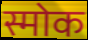
स्मोक